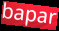
bapar